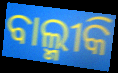
ବାଲ୍ମୀକି